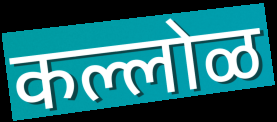
कल्लोळ